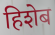
हिशेब